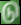
டு